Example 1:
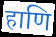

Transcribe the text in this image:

हाणि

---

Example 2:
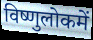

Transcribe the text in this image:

विष्णुलोकमें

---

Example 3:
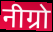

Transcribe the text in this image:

नीग्रो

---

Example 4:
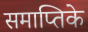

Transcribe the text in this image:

समाप्तिके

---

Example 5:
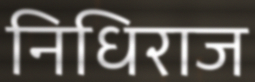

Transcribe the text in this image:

निधिराज